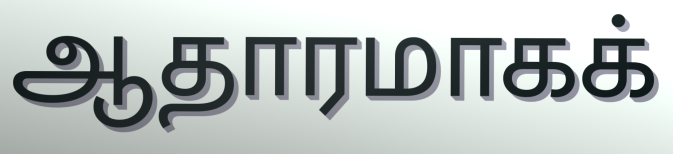
ஆதாரமாகக்